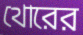
থোরের